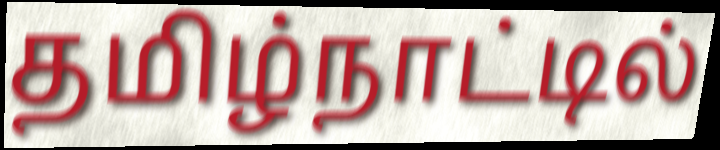
தமிழ்நாட்டில்